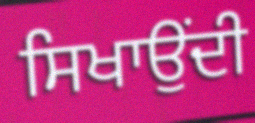
ਸਿਖਾਉਂਦੀ